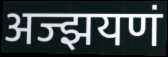
अज्झयणं